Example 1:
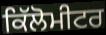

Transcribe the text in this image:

ਕਿੱਲੋਮੀਟਰ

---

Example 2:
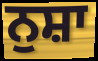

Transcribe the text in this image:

ਨੁਸ਼ਾ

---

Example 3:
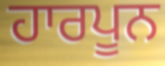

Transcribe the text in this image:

ਹਾਰਪੂਨ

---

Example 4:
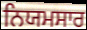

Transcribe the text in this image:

ਨਿਯਮਸਾਰ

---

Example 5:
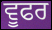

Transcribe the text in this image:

ਵੂਫਰ